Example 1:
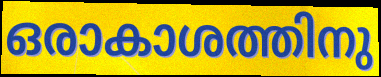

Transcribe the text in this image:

ഒരാകാശത്തിനു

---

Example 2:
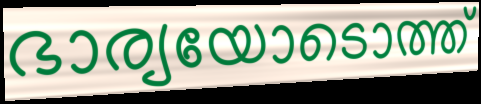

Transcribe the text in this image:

ഭാര്യയോടൊത്ത്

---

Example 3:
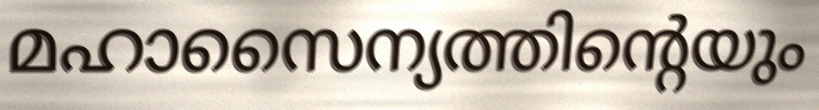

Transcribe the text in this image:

മഹാസൈന്യത്തിന്റെയും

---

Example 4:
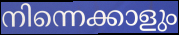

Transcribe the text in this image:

നിന്നെക്കാളും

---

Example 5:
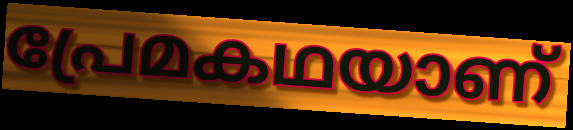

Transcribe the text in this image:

പ്രേമകഥയാണ്